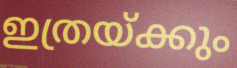
ഇത്രയ്ക്കും